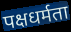
पक्षधर्मता